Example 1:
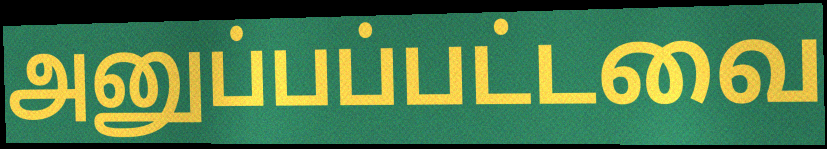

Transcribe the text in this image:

அனுப்பப்பட்டவை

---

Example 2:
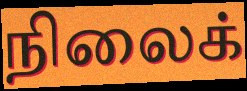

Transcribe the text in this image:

நிலைக்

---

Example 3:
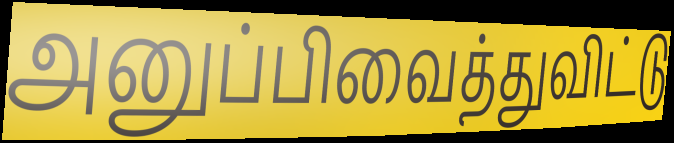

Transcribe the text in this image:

அனுப்பிவைத்துவிட்டு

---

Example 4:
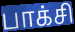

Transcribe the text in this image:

பாக்சி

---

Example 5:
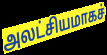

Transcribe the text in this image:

அலட்சியமாகச்